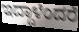
ಇದ್ದಾಳೆಂದರೆ